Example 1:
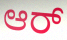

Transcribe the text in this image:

ಆರ್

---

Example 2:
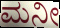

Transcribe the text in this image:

ಮನೀ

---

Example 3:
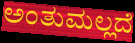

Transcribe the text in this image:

ಅಂತುಮಲ್ಲದೆ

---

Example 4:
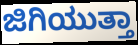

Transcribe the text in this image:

ಜಿಗಿಯುತ್ತಾ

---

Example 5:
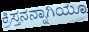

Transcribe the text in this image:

ಕ್ರಿಸ್ತನನ್ನಾಗಿಯೂ